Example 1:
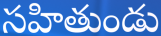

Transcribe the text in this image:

సహితుండు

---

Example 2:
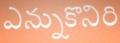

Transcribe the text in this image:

ఎన్నుకొనిరి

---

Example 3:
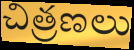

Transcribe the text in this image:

చిత్రణలు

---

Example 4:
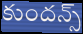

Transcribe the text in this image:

కుందన్స్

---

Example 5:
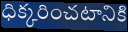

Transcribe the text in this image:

ధిక్కరించటానికి